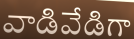
వాడివేడిగా